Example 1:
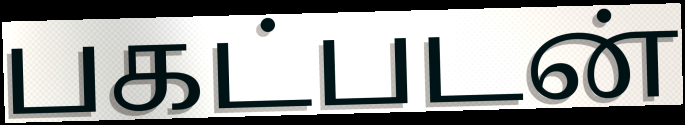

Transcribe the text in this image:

பகட்படன்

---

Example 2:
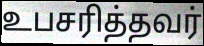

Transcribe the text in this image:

உபசரித்தவர்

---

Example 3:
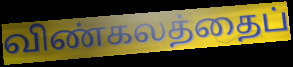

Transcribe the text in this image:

விண்கலத்தைப்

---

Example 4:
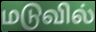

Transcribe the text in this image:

மடுவில்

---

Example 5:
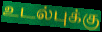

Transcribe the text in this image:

உடல்புக்கு